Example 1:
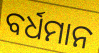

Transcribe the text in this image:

ବର୍ଧମାନ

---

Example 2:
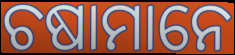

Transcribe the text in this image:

ଚଷାମାନେ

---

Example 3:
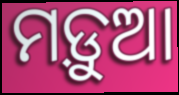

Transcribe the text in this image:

ମଡ଼ୁଆ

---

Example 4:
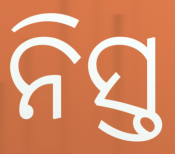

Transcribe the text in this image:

ନିସ୍ତ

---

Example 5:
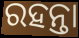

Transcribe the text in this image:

ରହନ୍ତା